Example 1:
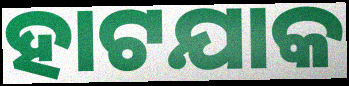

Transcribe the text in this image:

ହାଟଯାକ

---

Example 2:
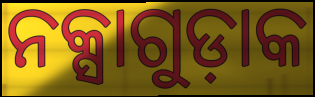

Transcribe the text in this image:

ନକ୍ସାଗୁଡ଼ାକ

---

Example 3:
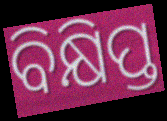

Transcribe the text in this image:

ବିକ୍ଷିପ୍ତ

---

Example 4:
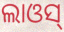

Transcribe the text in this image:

ଲାଓସ୍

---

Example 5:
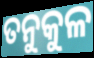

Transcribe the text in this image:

ତନୁକୁଳ